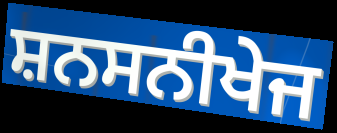
ਸ਼ਨਸਨੀਖੇਜ